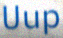
Uup